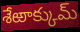
శేఱాక్కుమ్